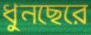
ধুনছেরে